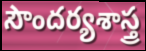
సౌందర్యశాస్త్ర